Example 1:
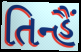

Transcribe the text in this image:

તિન્હૈં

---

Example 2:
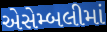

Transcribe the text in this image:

એસેમ્બલીમાં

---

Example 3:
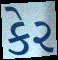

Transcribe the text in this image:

કેર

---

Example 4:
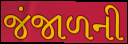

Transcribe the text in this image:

જંજાળની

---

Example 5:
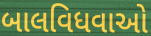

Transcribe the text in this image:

બાલવિધવાઓ